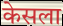
केसला